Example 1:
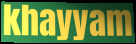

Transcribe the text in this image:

khayyam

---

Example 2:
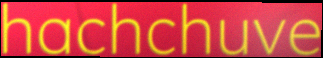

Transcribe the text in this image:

hachchuve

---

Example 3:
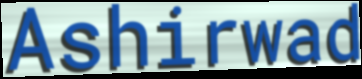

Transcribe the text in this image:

Ashirwad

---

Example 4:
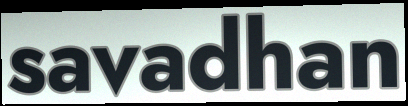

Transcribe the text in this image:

savadhan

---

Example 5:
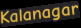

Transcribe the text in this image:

Kalanagar